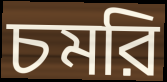
চমরি